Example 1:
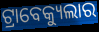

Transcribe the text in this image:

ଟ୍ରାବେକ୍ୟୁଲାର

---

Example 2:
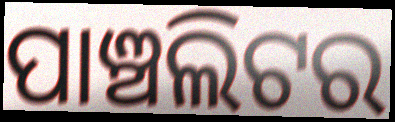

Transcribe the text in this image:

ପାଞ୍ଚଲିଟର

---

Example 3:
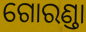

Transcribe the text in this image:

ଗୋରଣ୍ଡା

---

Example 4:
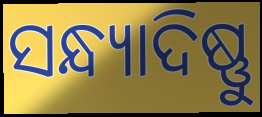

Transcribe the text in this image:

ସନ୍ଧ୍ୟାଦିଷ୍ଣୁ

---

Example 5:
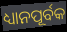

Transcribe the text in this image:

ଧ୍ୟାନପୂର୍ବକ